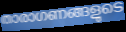
താരാഗണങ്ങളുടെ